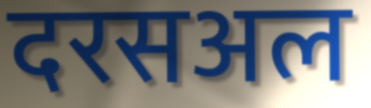
दरसअल